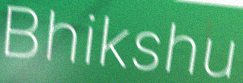
Bhikshu